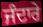
ਜੰਦਾਰੇ